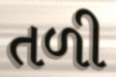
તળી